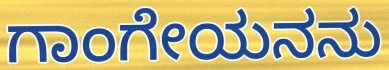
ಗಾಂಗೇಯನನು